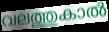
വലത്തുകാൽ